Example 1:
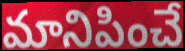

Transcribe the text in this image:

మానిపించే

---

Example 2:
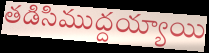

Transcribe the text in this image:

తడిసిముద్దయ్యాయి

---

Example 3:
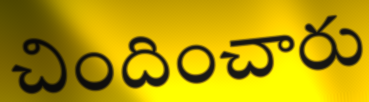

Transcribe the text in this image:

చిందించారు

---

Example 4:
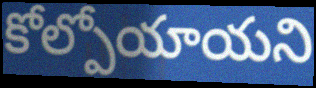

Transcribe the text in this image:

కోల్పోయాయని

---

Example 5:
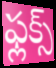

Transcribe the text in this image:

ఫ్లక్స్